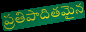
ప్రతిపాదితమైన